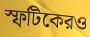
স্ফটিকেরও